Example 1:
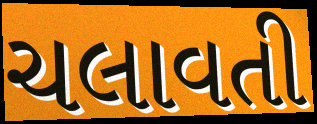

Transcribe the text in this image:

ચલાવતી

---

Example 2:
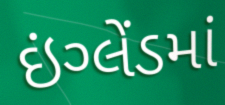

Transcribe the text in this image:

ઇંગ્લેંડમાં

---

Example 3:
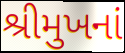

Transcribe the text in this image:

શ્રીમુખનાં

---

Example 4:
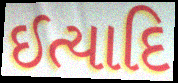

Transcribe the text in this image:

ઈત્યાદિ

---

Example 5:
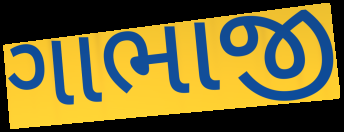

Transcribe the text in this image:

ગાભાજી